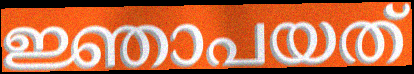
ജ്ഞാപയത്